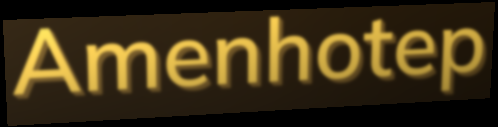
Amenhotep